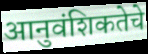
आनुवंशिकतेचे